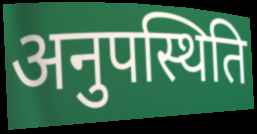
अनुपस्थिति